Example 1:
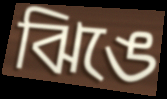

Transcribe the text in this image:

ঝিঙে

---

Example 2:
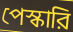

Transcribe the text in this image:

পেস্কারি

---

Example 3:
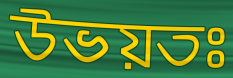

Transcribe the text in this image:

উভয়তঃ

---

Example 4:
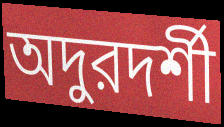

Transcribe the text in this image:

অদুরদর্শী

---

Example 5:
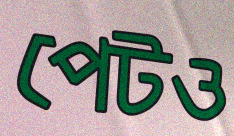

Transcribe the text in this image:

পেটও